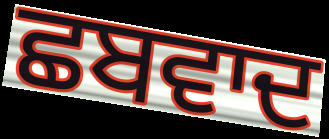
ਛਬਵਾਦ